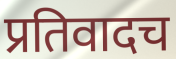
प्रतिवादच